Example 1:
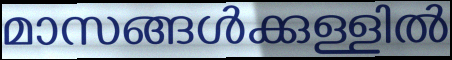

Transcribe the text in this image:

മാസങ്ങൾക്കുള്ളിൽ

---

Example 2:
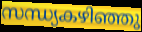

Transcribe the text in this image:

സന്ധ്യകഴിഞ്ഞു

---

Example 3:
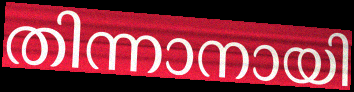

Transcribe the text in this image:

തിന്നാനായി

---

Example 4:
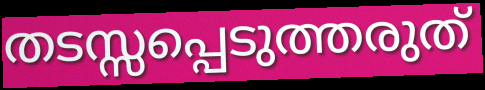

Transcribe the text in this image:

തടസ്സപ്പെടുത്തരുത്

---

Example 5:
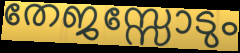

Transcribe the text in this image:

തേജസ്സോടും